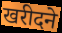
खरीदने